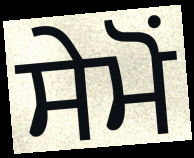
ਸੇਮੋਂ